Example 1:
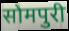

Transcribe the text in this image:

सोमपुरी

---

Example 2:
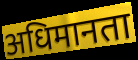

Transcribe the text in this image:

अधिमानता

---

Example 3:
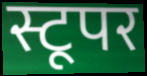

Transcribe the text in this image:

स्टूपर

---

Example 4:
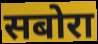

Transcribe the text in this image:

सबोरा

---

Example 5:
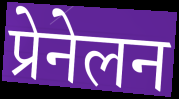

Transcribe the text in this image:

प्रेनेलन